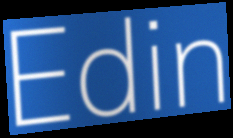
Edin